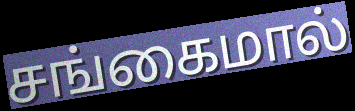
சங்கைமால்